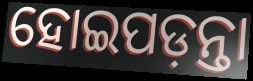
ହୋଇପଡ଼ନ୍ତା